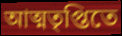
আত্মতৃপ্তিতে